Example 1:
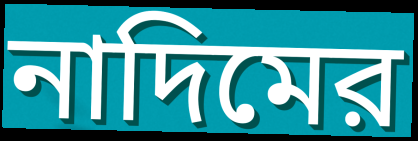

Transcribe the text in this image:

নাদিমের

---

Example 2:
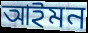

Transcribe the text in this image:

আইমন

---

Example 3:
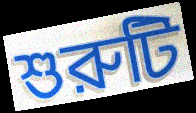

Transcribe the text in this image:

শুরুটি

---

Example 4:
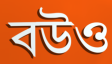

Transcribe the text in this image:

বউও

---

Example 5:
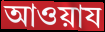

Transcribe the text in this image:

আওয়ায